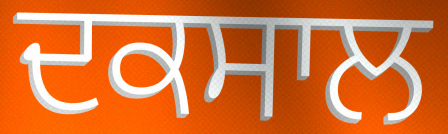
ਦਕਸਾਲ